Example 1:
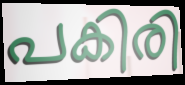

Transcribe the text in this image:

പകിരി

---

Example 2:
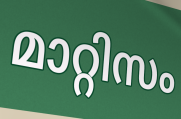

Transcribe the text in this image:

മാറ്റിസം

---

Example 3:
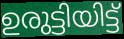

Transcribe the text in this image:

ഉരുട്ടിയിട്ട്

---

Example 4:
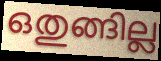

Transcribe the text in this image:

ഒതുങ്ങില്ല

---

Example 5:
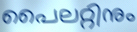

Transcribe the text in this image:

പൈലറ്റിനും